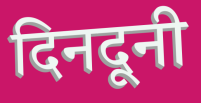
दिनदूनी